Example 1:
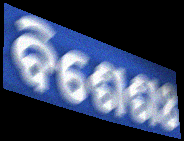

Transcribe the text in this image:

ବିଶେଶଃ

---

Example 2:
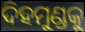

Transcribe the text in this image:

ଦିହମୁଣ୍ଡକୁ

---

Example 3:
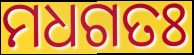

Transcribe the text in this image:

ମଧଗତଃ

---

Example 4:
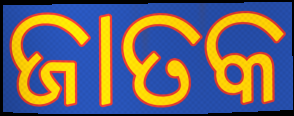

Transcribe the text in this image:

ଜାତକ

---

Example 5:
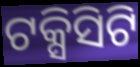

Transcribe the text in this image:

ଟକ୍ସିସିଟି